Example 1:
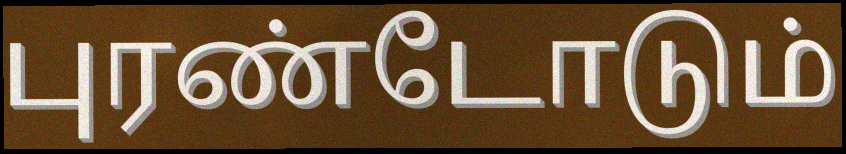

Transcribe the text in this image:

புரண்டோடும்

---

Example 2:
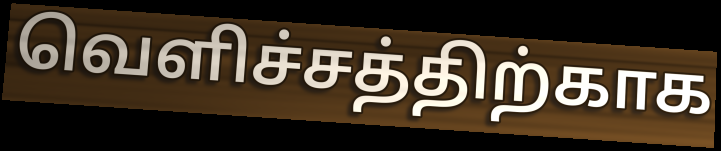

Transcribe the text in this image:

வெளிச்சத்திற்காக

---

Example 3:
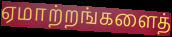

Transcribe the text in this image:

ஏமாற்றங்களைத்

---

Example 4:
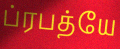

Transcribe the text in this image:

ப்ரபத்யே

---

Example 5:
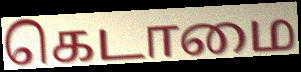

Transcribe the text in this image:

கெடாமை